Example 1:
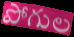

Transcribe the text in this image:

పోగుల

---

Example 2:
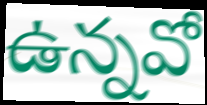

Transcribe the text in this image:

ఉన్నవో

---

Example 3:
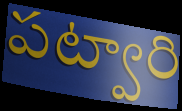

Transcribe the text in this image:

పట్వారి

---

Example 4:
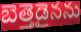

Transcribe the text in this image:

బెత్తెడైనను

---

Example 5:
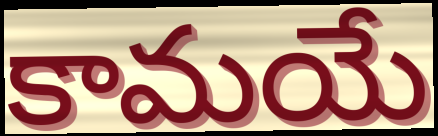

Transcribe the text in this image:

కామయే